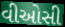
વીઓસી